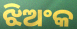
ଝିଅଂକ